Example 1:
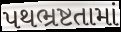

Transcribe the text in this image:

પથભ્રષ્ટતામાં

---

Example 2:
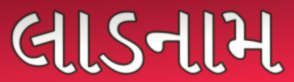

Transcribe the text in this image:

લાડનામ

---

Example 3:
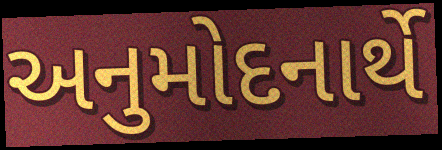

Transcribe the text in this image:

અનુમોદનાર્થે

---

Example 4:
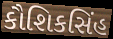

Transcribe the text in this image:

કૌશિકસિંહ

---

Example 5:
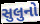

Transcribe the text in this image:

સુલુનો